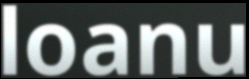
loanu